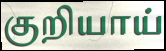
குறியாய்